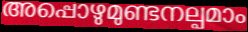
അപ്പൊഴുമുണ്ടനല്പമാം